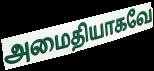
அமைதியாகவே